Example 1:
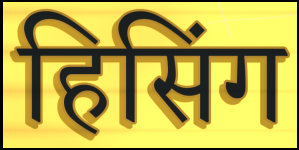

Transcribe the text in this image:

हिसिंग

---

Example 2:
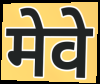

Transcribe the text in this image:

मेवे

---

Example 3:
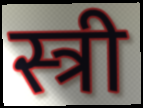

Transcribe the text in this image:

स्‍त्री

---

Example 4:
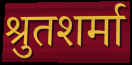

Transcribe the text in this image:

श्रुतशर्मा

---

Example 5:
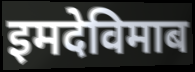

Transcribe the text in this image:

इमदेविमाब